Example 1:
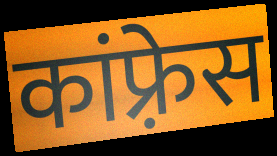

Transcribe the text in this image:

कांफ़्रेस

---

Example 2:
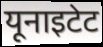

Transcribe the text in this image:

यूनाइटेट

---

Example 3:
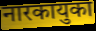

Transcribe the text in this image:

नारकायुका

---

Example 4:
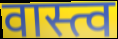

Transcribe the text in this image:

वास्त्व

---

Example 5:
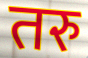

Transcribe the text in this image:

तरु